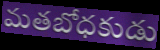
మతబోధకుడు